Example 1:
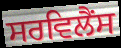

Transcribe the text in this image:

ਸਰਵਿਲੈਂਸ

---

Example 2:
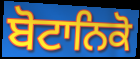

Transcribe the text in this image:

ਬੋਟਾਨਿਕੋ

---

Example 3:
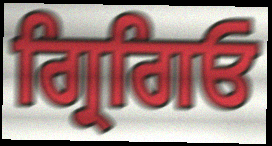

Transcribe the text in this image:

ਗ੍ਰਿਗਿਓ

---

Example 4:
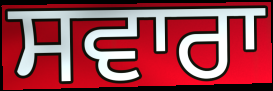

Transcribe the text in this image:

ਸਵਾਰਾ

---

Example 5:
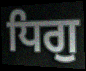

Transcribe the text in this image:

ਧਿਗੁ